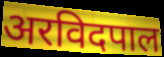
अरविदपाल